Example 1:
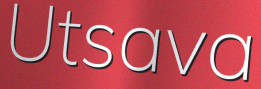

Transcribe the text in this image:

Utsava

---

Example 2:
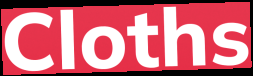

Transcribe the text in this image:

Cloths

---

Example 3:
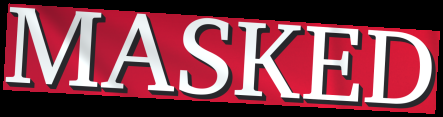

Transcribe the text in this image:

MASKED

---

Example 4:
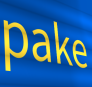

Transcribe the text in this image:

pake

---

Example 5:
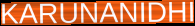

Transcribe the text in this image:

KARUNANIDHI